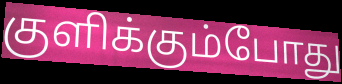
குளிக்கும்போது